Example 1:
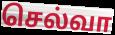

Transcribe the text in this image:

செல்வா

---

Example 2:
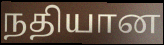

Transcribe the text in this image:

நதியான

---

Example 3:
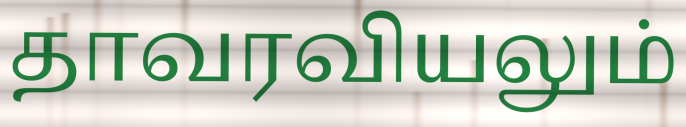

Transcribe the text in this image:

தாவரவியலும்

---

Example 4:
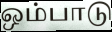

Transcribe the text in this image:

ஒம்பாடு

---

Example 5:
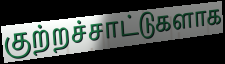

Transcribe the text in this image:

குற்றச்சாட்டுகளாக